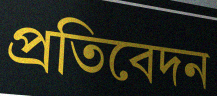
প্রতিবেদন